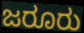
ಜರೂರು